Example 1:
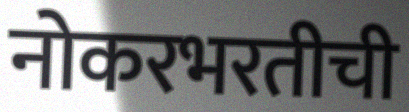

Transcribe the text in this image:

नोकरभरतीची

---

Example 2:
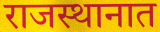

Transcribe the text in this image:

राजस्थानात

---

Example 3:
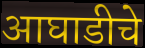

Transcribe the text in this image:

आघाडीचे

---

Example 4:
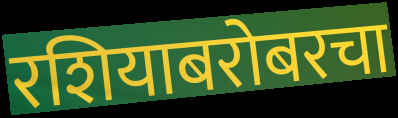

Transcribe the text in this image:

रशियाबरोबरचा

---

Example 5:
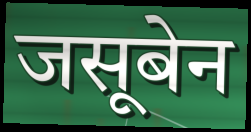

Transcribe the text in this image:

जसूबेन